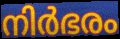
നിർഭരം